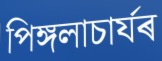
পিঙ্গলাচাৰ্যৰ